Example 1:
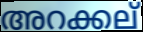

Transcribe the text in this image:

അറക്കല്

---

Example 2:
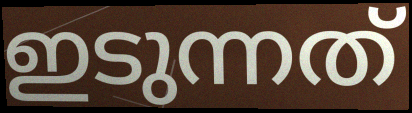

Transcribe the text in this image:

ഇടുന്നത്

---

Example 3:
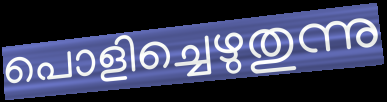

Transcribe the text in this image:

പൊളിച്ചെഴുതുന്നു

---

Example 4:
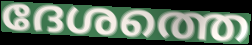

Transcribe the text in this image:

ദേശത്തെ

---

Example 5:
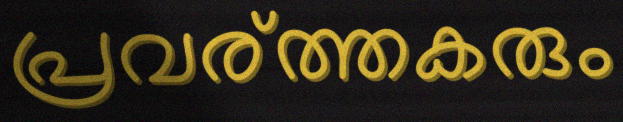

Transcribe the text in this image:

പ്രവര്ത്തകരും